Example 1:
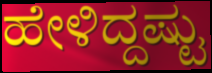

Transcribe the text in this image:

ಹೇಳಿದ್ದಷ್ಟು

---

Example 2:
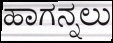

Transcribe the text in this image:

ಹಾಗನ್ನಲು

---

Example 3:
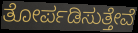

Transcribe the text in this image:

ತೋರ್ಪಡಿಸುತ್ತೇವೆ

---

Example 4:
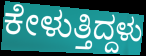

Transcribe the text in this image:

ಕೇಳುತ್ತಿದ್ದಳು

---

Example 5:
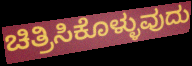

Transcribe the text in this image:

ಚಿತ್ರಿಸಿಕೊಳ್ಳುವುದು